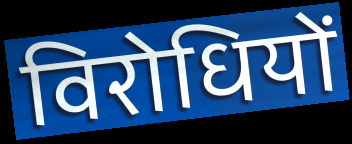
विरोधियों